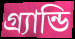
গ্র্যান্ডি